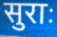
सुराः